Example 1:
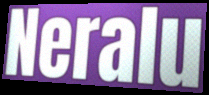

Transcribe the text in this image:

Neralu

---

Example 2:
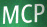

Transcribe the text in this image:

MCP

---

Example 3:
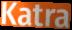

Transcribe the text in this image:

Katra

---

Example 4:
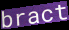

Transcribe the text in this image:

bract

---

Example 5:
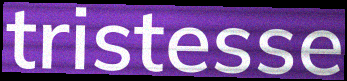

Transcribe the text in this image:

tristesse